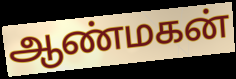
ஆண்மகன்